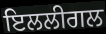
ਇਲਲੀਗਲ